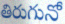
తిరుగునో